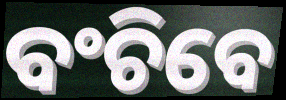
ବଂଚିବେ